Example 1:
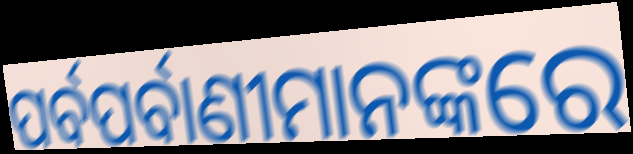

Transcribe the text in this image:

ପର୍ବପର୍ବାଣୀମାନଙ୍କରେ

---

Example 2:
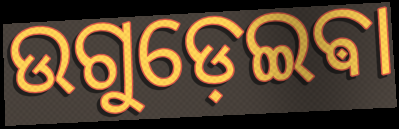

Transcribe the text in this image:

ଉଗୁଡ଼େଇଵା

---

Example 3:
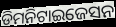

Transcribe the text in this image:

ଡିମନିଟାଇଜେସନ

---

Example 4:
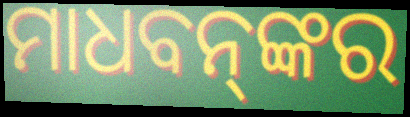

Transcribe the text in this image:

ମାଧବନ୍‌ଙ୍କର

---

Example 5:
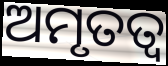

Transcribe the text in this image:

ଅମୃତତ୍ବ